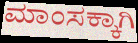
ಮಾಂಸಕ್ಕಾಗಿ